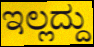
ಇಲ್ಲದ್ದು